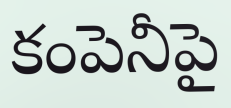
కంపెనీపై